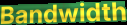
Bandwidth